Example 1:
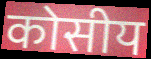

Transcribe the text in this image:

कोसीय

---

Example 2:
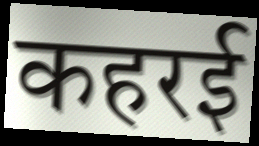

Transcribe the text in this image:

कहरई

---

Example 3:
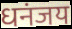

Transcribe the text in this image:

धनंजय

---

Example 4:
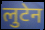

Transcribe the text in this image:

लुटेन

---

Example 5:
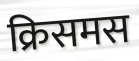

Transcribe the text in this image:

क्रिसमस